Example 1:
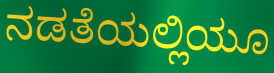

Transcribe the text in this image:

ನಡತೆಯಲ್ಲಿಯೂ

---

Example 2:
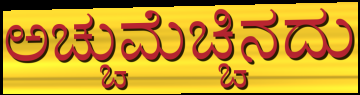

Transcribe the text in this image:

ಅಚ್ಚುಮೆಚ್ಚಿನದು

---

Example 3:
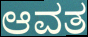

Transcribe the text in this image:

ಆವತ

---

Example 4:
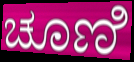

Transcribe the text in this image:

ಚೂಣಿ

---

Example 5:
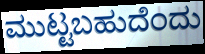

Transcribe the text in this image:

ಮುಟ್ಟಬಹುದೆಂದು